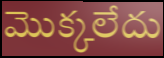
మొక్కలేదు